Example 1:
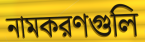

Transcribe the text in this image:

নামকরণগুলি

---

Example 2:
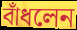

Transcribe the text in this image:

বাঁধলেন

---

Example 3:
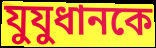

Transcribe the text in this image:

যুযুধানকে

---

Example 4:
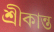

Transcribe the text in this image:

শ্রীকান্ত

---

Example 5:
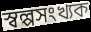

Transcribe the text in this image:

স্বল্পসংখ্যক